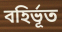
বহিৰ্ভূত